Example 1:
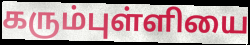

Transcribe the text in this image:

கரும்புள்ளியை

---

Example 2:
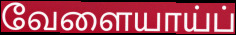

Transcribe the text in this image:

வேளையாய்ப்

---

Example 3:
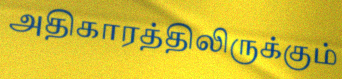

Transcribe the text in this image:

அதிகாரத்திலிருக்கும்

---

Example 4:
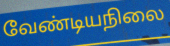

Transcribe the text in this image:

வேண்டியநிலை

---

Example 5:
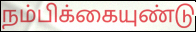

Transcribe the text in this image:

நம்பிக்கையுண்டு